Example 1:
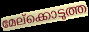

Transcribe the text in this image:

മേല്ക്കൊടുത്ത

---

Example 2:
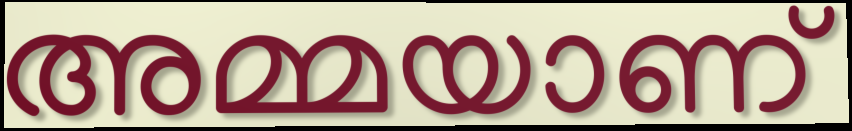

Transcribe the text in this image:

അമ്മയാണ്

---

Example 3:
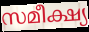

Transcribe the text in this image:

സമീക്ഷ്യ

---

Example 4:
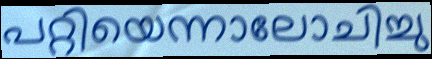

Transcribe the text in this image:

പറ്റിയെന്നാലോചിച്ചു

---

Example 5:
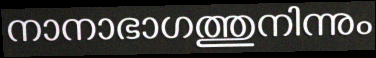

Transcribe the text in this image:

നാനാഭാഗത്തുനിന്നും